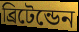
ব্রিটেন্ডেন